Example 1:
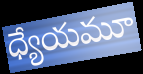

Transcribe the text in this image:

ధ్యేయమూ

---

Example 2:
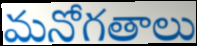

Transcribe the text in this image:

మనోగతాలు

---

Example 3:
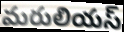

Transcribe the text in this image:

మరులియస్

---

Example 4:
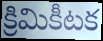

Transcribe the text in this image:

క్రిమికీటక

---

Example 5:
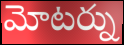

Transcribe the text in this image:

మోటర్ను